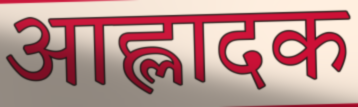
आह्लादक